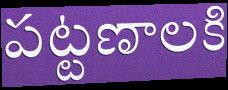
పట్టణాలకి